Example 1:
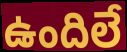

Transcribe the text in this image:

ఉందిలే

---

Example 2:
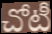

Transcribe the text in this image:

చోటీ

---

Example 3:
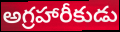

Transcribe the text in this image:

అగ్రహారీకుడు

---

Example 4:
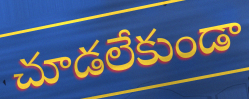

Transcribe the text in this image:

చూడలేకుండా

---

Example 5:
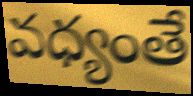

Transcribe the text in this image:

వధ్యంతే